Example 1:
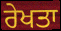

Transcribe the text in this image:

ਰੇਖਤਾ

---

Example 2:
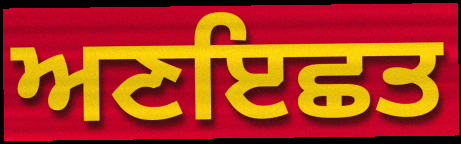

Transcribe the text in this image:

ਅਣਇਛਤ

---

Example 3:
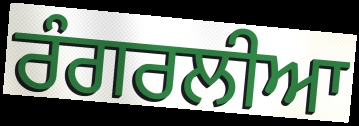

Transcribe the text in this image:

ਰੰਗਰਲੀਆ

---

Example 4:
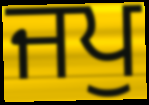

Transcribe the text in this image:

ਜਪੁ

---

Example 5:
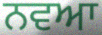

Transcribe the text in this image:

ਨਵਆ